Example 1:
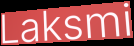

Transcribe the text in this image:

Laksmi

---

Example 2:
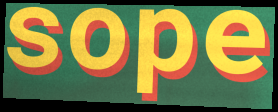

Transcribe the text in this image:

sope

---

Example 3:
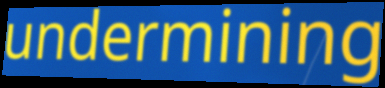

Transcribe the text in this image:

undermining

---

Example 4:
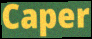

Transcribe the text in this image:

Caper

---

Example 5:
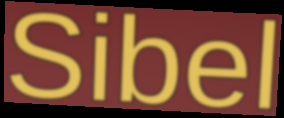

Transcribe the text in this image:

Sibel